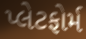
પ્લેટફોર્મ